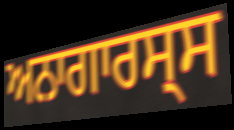
ਅਨਾਗਾਰਸ੍ਸ